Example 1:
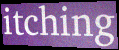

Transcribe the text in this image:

itching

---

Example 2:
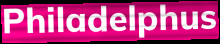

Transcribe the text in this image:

Philadelphus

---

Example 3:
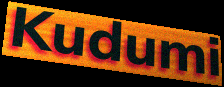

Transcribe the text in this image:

Kudumi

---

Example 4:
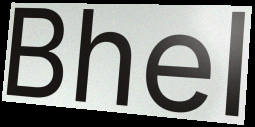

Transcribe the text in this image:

Bhel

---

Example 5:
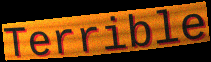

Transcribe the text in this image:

Terrible